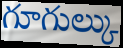
గూగుల్కు